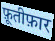
फ़ूतीफ़ार